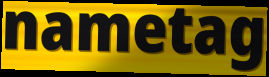
nametag